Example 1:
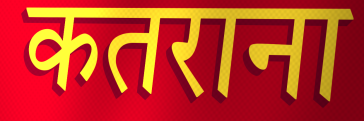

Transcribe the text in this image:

कतराना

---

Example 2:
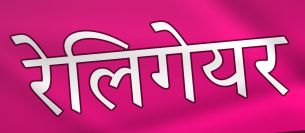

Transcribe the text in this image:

रेलिगेयर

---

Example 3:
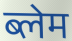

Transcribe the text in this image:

ब्लेम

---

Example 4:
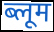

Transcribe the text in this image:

ब्लूम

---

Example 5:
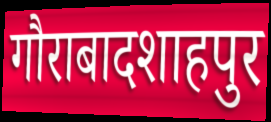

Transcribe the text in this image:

गौराबादशाहपुर